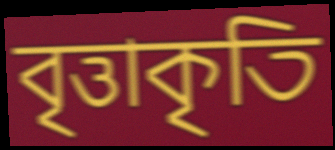
বৃত্তাকৃতি